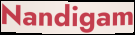
Nandigam